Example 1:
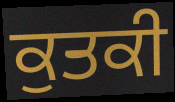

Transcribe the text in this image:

ਕੁਤਕੀ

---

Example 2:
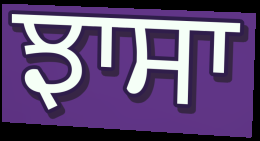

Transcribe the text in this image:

ਝਾਸਾ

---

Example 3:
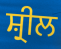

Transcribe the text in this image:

ਸ਼੍ਰੀਲ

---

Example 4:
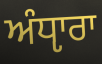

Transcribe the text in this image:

ਅੰਧੵਾਰਾ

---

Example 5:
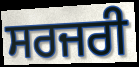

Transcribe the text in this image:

ਸਰਜਰੀ